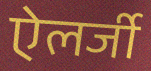
ऐलर्जी